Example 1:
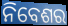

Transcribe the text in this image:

ନିବେଶର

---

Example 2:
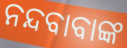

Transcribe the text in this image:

ନନ୍ଦବାବାଙ୍କ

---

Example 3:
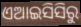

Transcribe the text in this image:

ଏଆଇସିସିରୁ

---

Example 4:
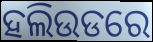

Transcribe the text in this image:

ହଲିଉଡରେ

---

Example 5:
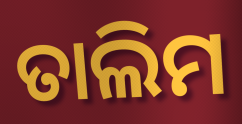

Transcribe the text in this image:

ତାଲିମ